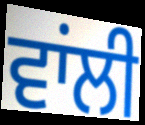
ਵਾਂਲੀ